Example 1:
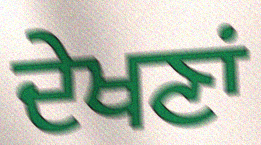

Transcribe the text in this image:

ਦੇਖਣਾਂ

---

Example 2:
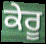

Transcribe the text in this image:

ਕੇਰੂ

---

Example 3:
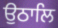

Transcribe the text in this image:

ਉਠਾਲਿ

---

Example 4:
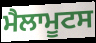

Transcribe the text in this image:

ਮੈਲਾਮੂਟਸ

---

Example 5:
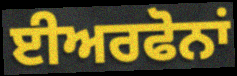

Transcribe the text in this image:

ਈਅਰਫੋਨਾਂ